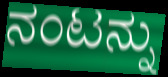
ನಂಟನ್ನು